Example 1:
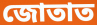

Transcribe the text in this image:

জোতাত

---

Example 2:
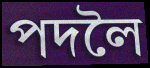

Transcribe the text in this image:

পদলৈ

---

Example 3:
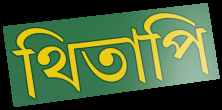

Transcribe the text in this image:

থিতাপি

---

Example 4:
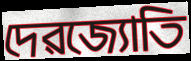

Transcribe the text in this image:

দেৱজ্যোতি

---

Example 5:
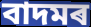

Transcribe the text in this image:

বাদমৰ